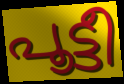
പൂട്ടീ